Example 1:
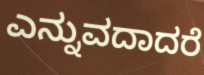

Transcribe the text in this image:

ಎನ್ನುವದಾದರೆ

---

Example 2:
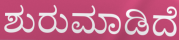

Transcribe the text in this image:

ಶುರುಮಾಡಿದೆ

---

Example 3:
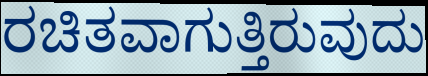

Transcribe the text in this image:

ರಚಿತವಾಗುತ್ತಿರುವುದು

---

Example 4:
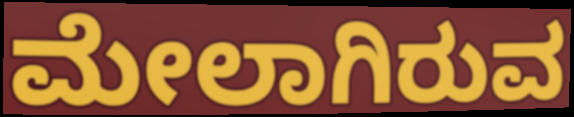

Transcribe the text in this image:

ಮೇಲಾಗಿರುವ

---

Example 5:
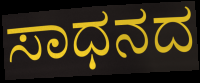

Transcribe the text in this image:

ಸಾಧನದ